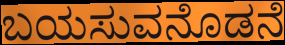
ಬಯಸುವನೊಡನೆ